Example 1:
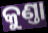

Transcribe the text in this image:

କୁଣ୍ତା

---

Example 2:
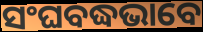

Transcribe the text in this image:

ସଂଘବଦ୍ଧଭାବେ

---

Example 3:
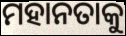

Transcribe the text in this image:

ମହାନତାକୁ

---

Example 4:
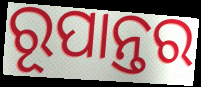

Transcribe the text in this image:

ରୂପାନ୍ତର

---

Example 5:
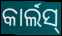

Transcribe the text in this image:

କାର୍ଲସ୍